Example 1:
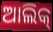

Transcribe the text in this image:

ଆଲିକ୍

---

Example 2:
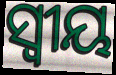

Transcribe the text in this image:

ସ୍ବୀୟ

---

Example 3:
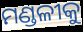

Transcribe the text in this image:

ମଣ୍ଡଳୀକୁ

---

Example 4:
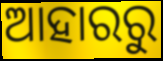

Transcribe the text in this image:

ଆହାରରୁ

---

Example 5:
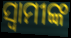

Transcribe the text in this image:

ସ୍ଵାମୀଙ୍କ